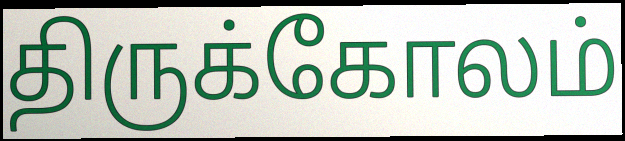
திருக்கோலம்